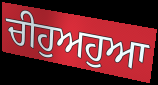
ਚੀਹੁਅਹੁਆ